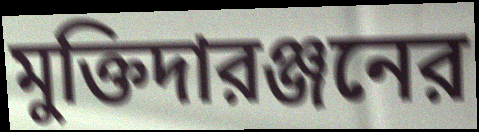
মুক্তিদারঞ্জনের